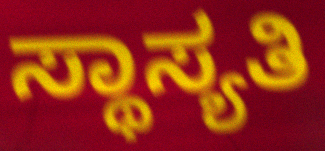
ಸ್ಥಾಸ್ಯತಿ